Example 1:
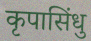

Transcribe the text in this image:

कृपासिंधु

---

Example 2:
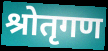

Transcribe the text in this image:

श्रोतृगण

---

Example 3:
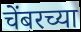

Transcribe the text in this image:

चेंबरच्या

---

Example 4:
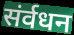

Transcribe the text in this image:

संर्वधन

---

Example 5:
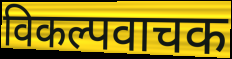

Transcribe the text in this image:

विकल्पवाचक